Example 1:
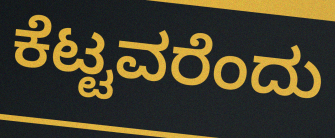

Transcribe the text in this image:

ಕೆಟ್ಟವರೆಂದು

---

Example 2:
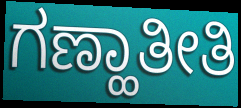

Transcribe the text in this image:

ಗಣ್ಹಾತೀತಿ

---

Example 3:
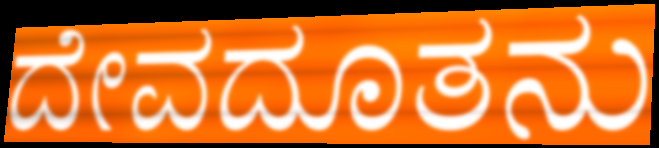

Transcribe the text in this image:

ದೇವದೂತನು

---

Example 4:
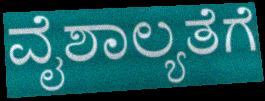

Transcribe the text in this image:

ವೈಶಾಲ್ಯತೆಗೆ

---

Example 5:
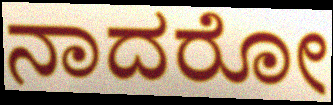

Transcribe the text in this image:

ನಾದರೋ